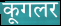
कूगलर